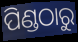
ପିଣ୍ଡଠାରୁ